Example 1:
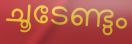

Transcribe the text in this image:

ചൂടേണ്ടും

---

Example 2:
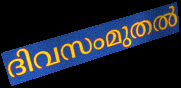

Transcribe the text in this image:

ദിവസംമുതൽ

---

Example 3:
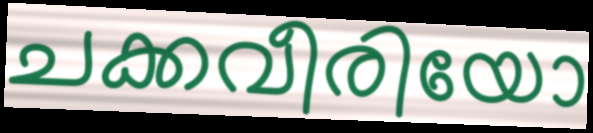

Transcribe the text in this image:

ചക്കവീരിയോ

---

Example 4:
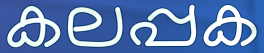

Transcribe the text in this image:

കലപ്പക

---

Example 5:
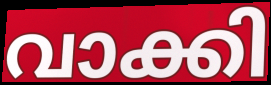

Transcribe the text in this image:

വാക്കി